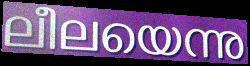
ലീലയെന്നു